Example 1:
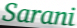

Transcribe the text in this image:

Sarani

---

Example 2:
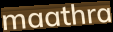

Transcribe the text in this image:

maathra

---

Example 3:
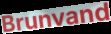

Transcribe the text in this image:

Brunvand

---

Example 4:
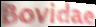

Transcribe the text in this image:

Bovidae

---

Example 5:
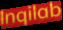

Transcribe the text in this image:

Inqilab